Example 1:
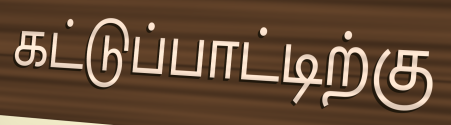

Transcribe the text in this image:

கட்டுப்பாட்டிற்கு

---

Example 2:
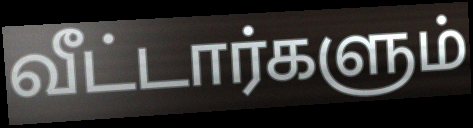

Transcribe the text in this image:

வீட்டார்களும்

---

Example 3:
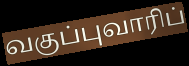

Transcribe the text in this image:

வகுப்புவாரிப்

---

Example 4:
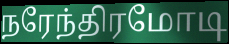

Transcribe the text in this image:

நரேந்திரமோடி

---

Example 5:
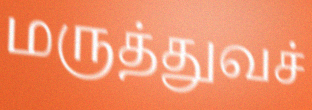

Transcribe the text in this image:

மருத்துவச்